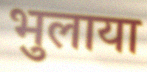
भुलाया